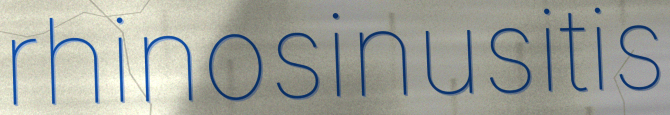
rhinosinusitis